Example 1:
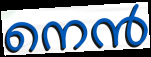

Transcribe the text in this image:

നെൻ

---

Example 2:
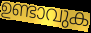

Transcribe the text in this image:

ഉണ്ടാവുക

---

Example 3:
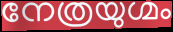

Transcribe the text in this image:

നേത്രയുഗ്മം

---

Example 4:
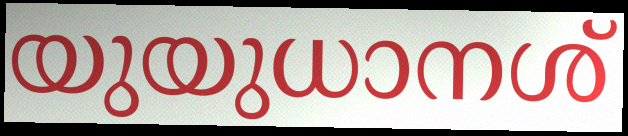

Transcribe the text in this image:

യുയുധാനശ്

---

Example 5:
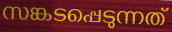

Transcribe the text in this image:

സങ്കടപ്പെടുന്നത്